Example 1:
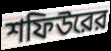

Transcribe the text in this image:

শফিউরের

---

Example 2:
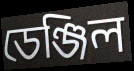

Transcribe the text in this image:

ডেঞ্জিল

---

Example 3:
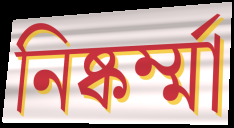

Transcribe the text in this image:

নিষ্কর্ম্মা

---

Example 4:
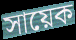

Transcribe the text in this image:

সায়েক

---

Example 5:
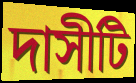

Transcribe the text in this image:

দাসীটি